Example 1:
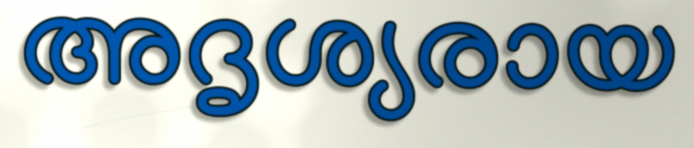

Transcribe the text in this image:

അദൃശ്യരായ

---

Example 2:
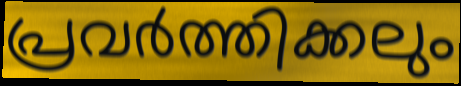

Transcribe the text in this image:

പ്രവർത്തിക്കലും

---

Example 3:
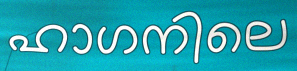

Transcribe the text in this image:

ഹാഗനിലെ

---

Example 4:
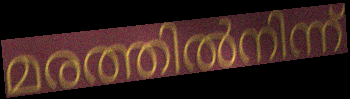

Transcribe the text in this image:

മരത്തിൽനിന്ന്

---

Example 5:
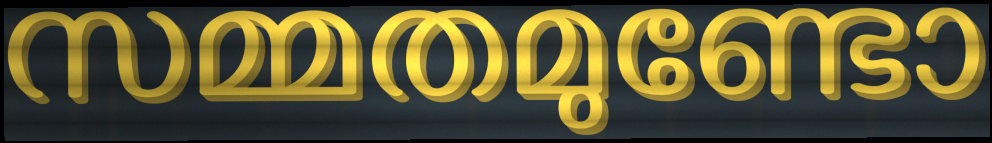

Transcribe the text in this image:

സമ്മതമുണ്ടോ